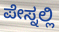
ಪೇಸ್ನಲ್ಲಿ